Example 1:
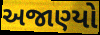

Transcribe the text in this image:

અજાણ્યો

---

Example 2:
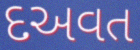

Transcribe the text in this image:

દઅવત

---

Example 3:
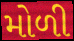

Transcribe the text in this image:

મોળી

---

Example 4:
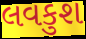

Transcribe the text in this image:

લવકુશ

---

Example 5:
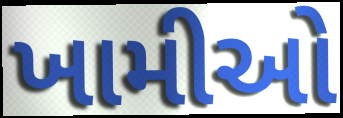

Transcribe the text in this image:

ખામીઓ